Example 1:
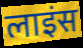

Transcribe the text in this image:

लाइंस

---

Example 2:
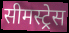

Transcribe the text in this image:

सीमस्ट्रेस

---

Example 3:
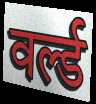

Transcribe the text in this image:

वर्ल्ड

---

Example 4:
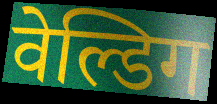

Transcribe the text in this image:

वेल्डिग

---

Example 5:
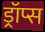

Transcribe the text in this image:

ड्रॉप्स